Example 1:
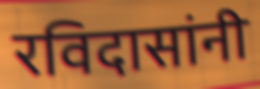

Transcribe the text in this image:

रविदासांनी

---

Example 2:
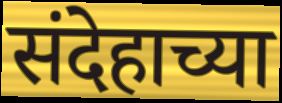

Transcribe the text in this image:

संदेहाच्या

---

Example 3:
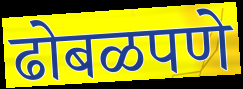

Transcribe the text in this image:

ढोबळपणे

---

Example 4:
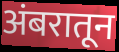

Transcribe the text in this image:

अंबरातून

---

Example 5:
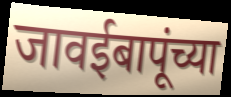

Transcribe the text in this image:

जावईबापूंच्या